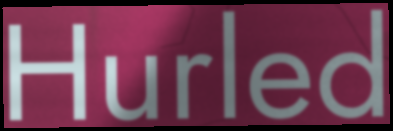
Hurled